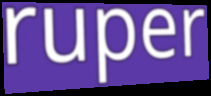
ruper